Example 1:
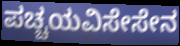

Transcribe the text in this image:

ಪಚ್ಚಯವಿಸೇಸೇನ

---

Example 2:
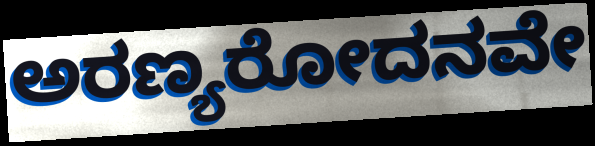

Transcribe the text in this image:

ಅರಣ್ಯರೋದನವೇ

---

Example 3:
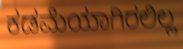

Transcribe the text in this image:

ಕಡಮೆಯಾಗಿರಲಿಲ್ಲ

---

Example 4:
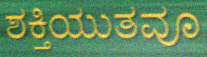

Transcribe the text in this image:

ಶಕ್ತಿಯುತವೂ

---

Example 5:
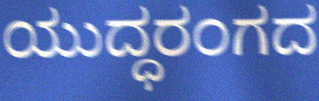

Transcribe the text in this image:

ಯುದ್ಧರಂಗದ